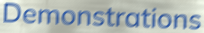
Demonstrations